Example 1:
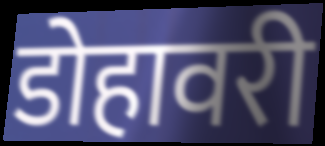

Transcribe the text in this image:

डोहावरी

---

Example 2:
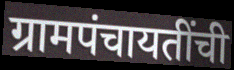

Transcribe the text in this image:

ग्रामपंचायतींची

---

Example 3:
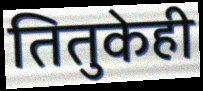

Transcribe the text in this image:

तितुकेही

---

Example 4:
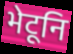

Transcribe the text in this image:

भेटूनि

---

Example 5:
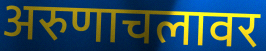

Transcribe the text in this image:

अरुणाचलावर